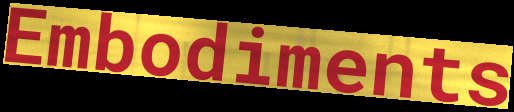
Embodiments